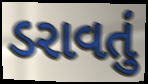
ડરાવતું